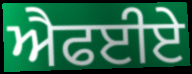
ਐਫਈਏ